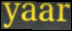
yaar